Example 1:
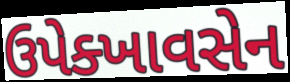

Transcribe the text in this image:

ઉપેક્ખાવસેન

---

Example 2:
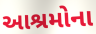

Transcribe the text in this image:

આશ્રમોના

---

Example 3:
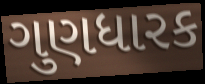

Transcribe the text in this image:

ગુણધારક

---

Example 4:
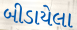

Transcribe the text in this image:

બીડાયેલા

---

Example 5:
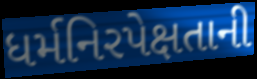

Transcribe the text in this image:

ધર્મનિરપેક્ષતાની